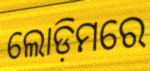
ଲୋଡ଼ିମରେ